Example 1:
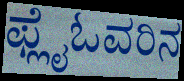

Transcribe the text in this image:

ಫ್ಲೈಓವರಿನ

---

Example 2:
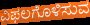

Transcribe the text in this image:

ವಿಫಲಗೊಳಿಸುವ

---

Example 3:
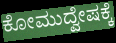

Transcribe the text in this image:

ಕೋಮುದ್ವೇಷಕ್ಕೆ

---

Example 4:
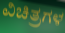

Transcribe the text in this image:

ವಿಚಿತ್ರಗಳ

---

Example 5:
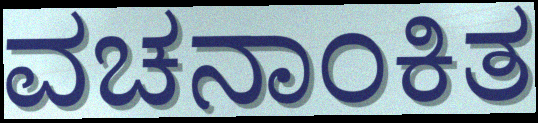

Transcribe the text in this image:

ವಚನಾಂಕಿತ